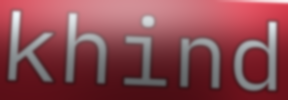
khind